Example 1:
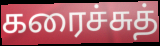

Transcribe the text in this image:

கரைச்சுத்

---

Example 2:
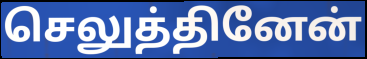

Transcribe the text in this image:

செலுத்தினேன்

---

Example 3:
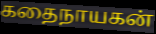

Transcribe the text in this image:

கதைநாயகன்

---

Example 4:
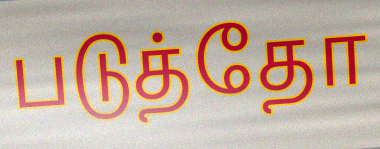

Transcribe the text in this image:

படுத்தோ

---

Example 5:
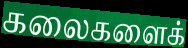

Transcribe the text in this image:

கலைகளைக்